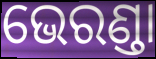
ଭେରଣ୍ଡା